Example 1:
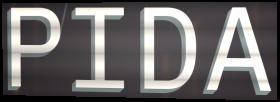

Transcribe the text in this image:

PIDA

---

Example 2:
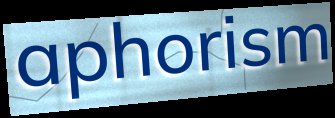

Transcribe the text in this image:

aphorism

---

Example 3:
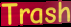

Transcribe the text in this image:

Trash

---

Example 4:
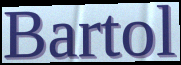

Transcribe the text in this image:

Bartol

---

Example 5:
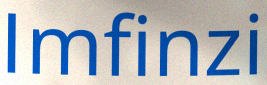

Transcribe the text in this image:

Imfinzi